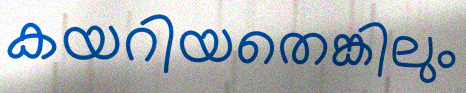
കയറിയതെങ്കിലും